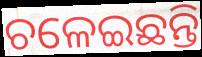
ଚଳେଇଛନ୍ତି